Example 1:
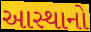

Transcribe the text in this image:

આસ્થાનો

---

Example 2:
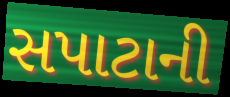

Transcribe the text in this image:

સપાટાની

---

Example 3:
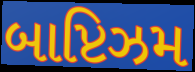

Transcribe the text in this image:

બાપ્ટિઝમ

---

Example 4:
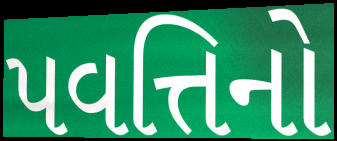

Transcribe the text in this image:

પવત્તિનો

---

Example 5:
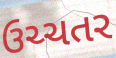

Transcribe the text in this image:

ઉચ્ચતર